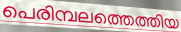
പെരിമ്പലത്തെത്തിയ